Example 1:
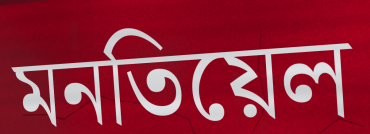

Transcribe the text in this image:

মনতিয়েল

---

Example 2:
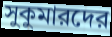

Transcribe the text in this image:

সুকুমারদের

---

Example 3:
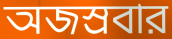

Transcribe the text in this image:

অজস্রবার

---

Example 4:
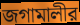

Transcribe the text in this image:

জগামালীর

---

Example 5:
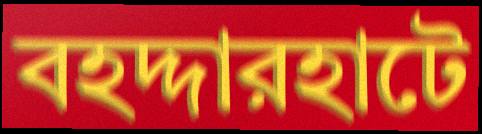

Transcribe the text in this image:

বহদ্দারহাটে